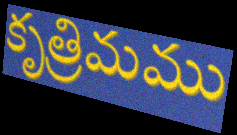
కృత్రిమము